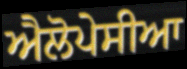
ਐਲੋਪੇਸੀਆ